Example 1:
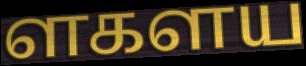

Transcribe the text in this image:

ளகளய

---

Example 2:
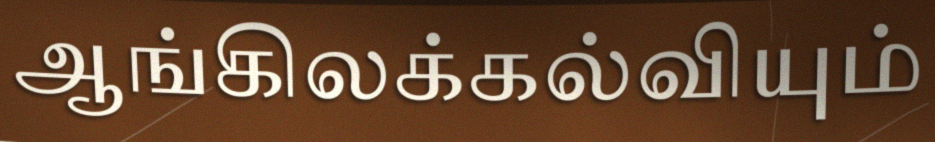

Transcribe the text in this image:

ஆங்கிலக்கல்வியும்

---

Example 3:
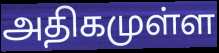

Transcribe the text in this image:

அதிகமுள்ள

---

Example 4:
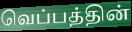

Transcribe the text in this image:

வெப்பத்தின்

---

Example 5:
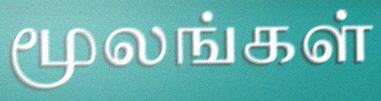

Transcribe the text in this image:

மூலங்கள்